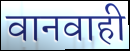
वानवाही